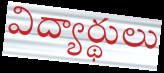
విద్యార్థులు